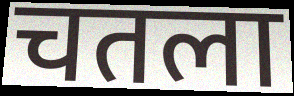
चतला